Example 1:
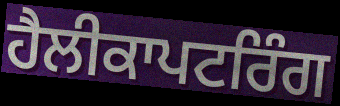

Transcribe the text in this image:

ਹੈਲੀਕਾਪਟਰਿੰਗ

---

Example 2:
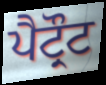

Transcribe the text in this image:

ਪੈਟ੍ਰੌਟ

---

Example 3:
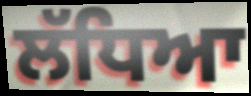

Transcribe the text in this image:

ਲੱਧਿਆ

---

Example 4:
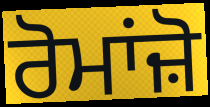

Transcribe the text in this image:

ਰੋਮਾਂਜ਼ੋ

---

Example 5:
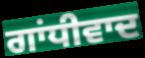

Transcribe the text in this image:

ਗਾਂਧੀਵਾਦ